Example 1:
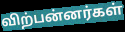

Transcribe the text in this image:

விற்பன்னர்கள்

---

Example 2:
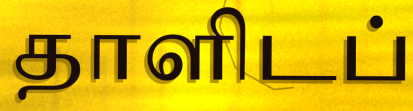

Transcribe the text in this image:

தாளிடப்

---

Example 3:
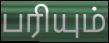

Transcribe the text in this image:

பரியும்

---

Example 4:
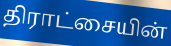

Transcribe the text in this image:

திராட்சையின்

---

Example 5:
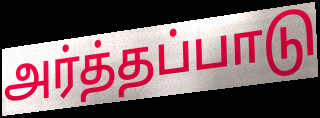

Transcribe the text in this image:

அர்த்தப்பாடு